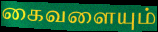
கைவளையும்